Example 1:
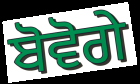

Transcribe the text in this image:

ਬੋਵੋਗੇ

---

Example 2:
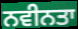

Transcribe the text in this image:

ਨਵੀਨਤਾ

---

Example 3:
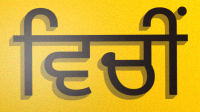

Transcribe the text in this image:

ਵਿਚੀਂ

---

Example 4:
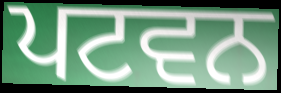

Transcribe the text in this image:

ਪਟਵਨ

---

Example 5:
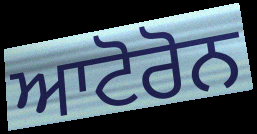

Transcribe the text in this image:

ਆਟੋਰੋਨ